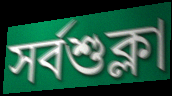
সর্বশুক্লা